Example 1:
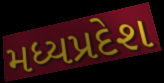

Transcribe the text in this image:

મધ્યપ્રદેશ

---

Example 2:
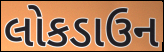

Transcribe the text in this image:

લોકડાઉન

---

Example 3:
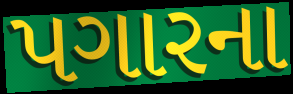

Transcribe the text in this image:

પગારના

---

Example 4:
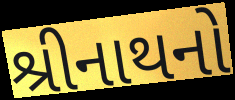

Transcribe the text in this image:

શ્રીનાથનો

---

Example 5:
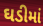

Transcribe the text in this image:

ઘડીમાં